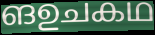
ങഉചകഥ